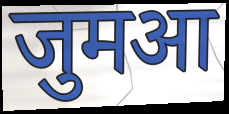
जुमआ